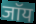
जॉय